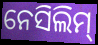
ନେସିଲିମ୍